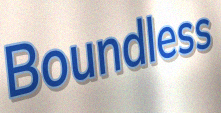
Boundless